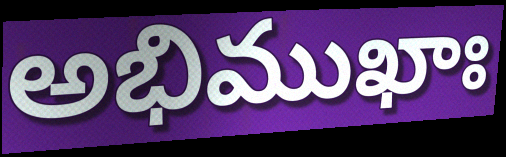
అభిముఖాః